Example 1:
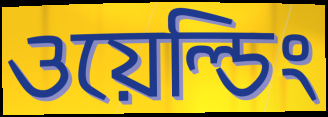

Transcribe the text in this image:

ওয়েল্ডিং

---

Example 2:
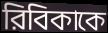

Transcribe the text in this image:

রিবিকাকে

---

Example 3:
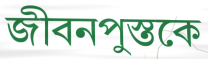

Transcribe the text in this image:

জীবনপুস্তকে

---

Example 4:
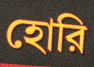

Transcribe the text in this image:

হোরি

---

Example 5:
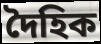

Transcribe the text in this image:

দৈহিক